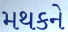
મથકને